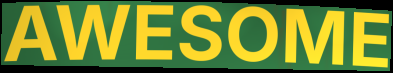
AWESOME